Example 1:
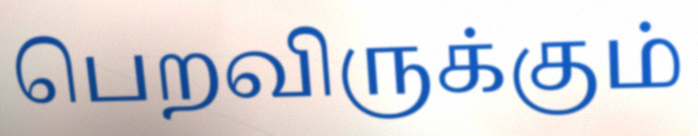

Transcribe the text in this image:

பெறவிருக்கும்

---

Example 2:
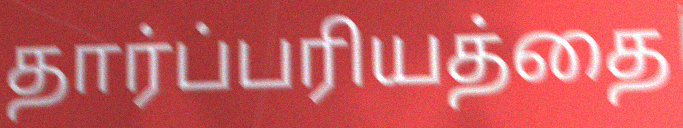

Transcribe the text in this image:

தார்ப்பரியத்தை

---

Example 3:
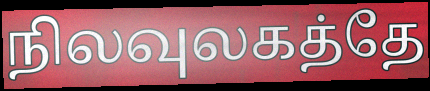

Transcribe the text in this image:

நிலவுலகத்தே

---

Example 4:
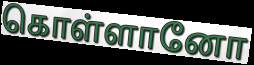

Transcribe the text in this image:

கொள்ளானோ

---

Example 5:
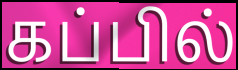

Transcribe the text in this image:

கப்பில்